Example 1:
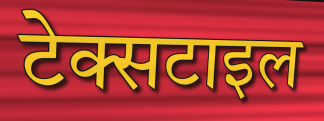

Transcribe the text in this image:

टेक्सटाइल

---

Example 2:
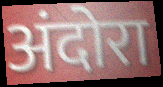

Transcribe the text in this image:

अंदोरा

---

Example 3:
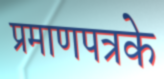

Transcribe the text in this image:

प्रमाणपत्रके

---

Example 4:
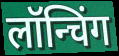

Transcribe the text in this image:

लॉन्चिंग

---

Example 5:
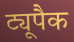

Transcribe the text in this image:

ट्यूपैक